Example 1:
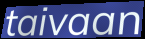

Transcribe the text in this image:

taivaan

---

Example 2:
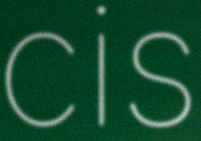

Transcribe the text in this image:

cis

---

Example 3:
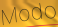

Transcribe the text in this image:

Modo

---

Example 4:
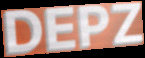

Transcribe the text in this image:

DEPZ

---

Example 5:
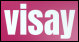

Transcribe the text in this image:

visay